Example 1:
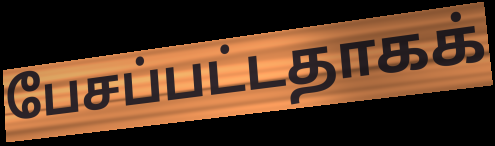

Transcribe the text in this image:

பேசப்பட்டதாகக்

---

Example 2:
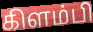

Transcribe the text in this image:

கிளம்பி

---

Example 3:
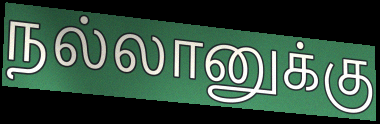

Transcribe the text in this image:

நல்லானுக்கு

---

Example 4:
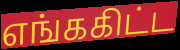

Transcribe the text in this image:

எங்ககிட்ட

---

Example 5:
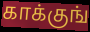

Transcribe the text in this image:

காக்குங்